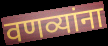
वणव्यांना